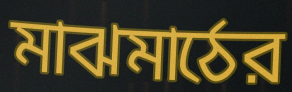
মাঝমাঠের